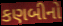
કણબીનો